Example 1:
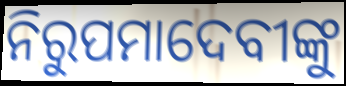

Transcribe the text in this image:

ନିରୁପମାଦେବୀଙ୍କୁ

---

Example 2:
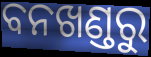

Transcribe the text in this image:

ବନଖଣ୍ଡରୁ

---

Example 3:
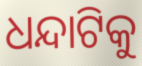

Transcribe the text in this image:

ଧନ୍ଦାଟିକୁ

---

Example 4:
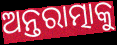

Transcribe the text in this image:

ଅନ୍ତରାତ୍ମାକୁ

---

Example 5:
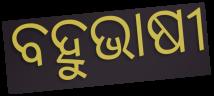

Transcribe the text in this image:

ବହୁଭାଷୀ